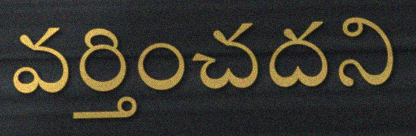
వర్తించదని